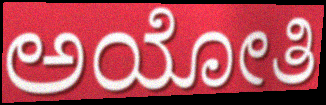
ಅಯೋತಿ